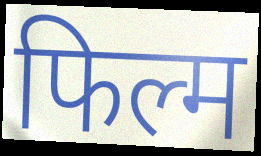
फिल्म